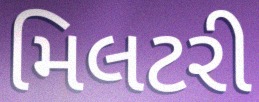
મિલટરી